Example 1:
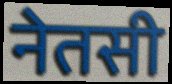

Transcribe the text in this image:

नेतसी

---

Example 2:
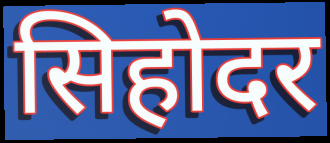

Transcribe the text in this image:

सिहोदर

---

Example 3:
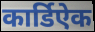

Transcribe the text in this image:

कार्डिऐक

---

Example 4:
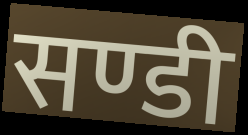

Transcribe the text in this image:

सण्डी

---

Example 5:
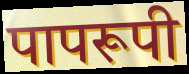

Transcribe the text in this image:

पापरूपी